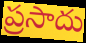
ప్రసాదు